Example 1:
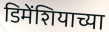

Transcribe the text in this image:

डिमेंशियाच्या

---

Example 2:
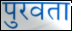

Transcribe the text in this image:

पुरवता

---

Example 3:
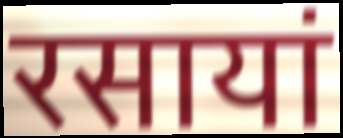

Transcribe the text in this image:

रसायां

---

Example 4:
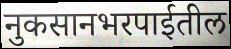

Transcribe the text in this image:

नुकसानभरपाईतील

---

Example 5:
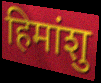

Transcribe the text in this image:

हिमांशु